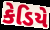
કેડિયે